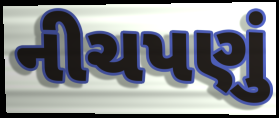
નીચપણું